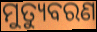
ମୁତ୍ୟୁବରଣ